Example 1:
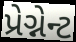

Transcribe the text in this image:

પ્રેગ્નેન્ટ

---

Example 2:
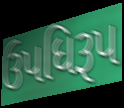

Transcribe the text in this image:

ઉપધિરૂપ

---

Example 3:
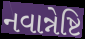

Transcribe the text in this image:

નવાન્નેષ્ટિ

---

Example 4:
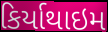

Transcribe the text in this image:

કિર્યાથાઇમ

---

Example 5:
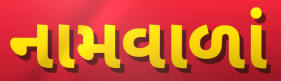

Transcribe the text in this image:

નામવાળાં